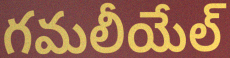
గమలీయేల్